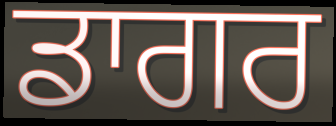
ਡਾਗਰ